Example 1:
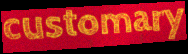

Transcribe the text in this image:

customary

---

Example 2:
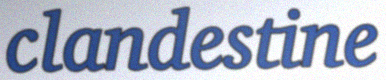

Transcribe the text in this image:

clandestine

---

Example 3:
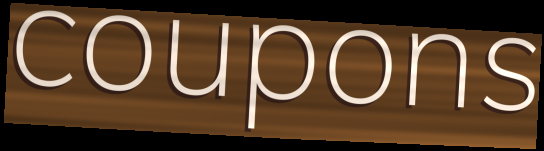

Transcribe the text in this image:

coupons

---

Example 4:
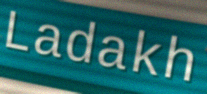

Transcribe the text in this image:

Ladakh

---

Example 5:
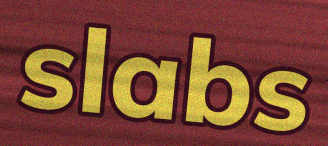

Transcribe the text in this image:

slabs